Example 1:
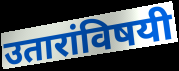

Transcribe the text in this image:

उतारांविषयी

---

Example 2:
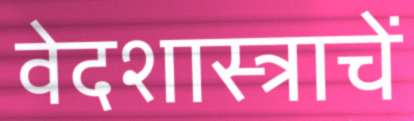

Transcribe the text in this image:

वेदशास्त्राचें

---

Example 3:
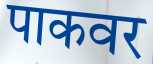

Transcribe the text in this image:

पाकवर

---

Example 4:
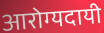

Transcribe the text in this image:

आरोग्यदायी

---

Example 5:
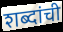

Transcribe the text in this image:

शब्दांची